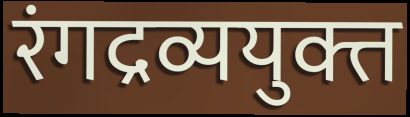
रंगद्रव्ययुक्त